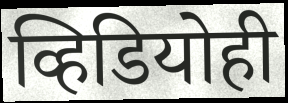
व्हिडियोही